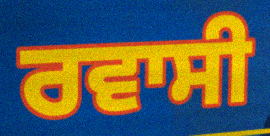
ਰਵਾਸੀ